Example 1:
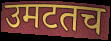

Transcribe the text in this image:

उमटतच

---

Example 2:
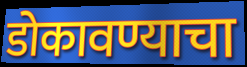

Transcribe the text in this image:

डोकावण्याचा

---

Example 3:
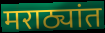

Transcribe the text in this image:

मराठ्यांत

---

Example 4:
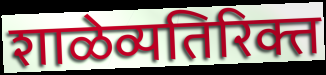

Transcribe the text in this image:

शाळेव्यतिरिक्त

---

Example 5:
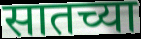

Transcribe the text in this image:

सातच्या